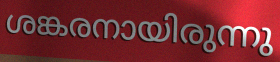
ശങ്കരനായിരുന്നു